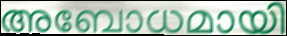
അബോധമായി